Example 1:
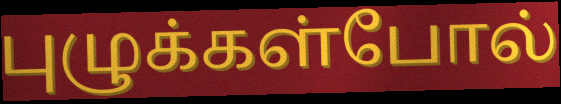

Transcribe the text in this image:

புழுக்கள்போல்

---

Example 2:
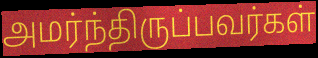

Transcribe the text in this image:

அமர்ந்திருப்பவர்கள்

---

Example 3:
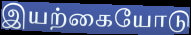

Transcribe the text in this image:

இயற்கையோடு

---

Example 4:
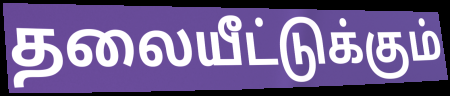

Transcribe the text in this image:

தலையீட்டுக்கும்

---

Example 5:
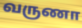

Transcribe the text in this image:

வருணா